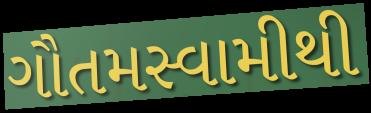
ગૌતમસ્વામીથી